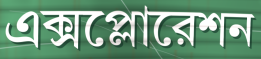
এক্সপ্লোরেশন